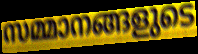
സമ്മാനങ്ങളുടെ